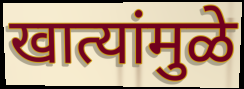
खात्यांमुळे